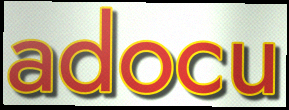
adocu